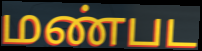
மண்பட